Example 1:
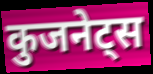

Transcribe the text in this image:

कुजनेट्स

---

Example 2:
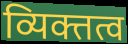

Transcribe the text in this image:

व्यिक्तत्व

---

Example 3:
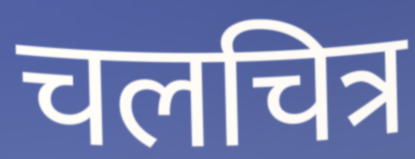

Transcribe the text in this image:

चलचित्र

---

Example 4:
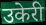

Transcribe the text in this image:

उकेरी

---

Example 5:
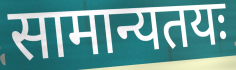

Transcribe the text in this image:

सामान्यतयः